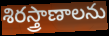
శిరస్త్రాణాలను